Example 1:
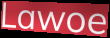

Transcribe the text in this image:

Lawoe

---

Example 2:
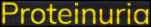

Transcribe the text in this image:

Proteinuria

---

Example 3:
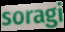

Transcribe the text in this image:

soragi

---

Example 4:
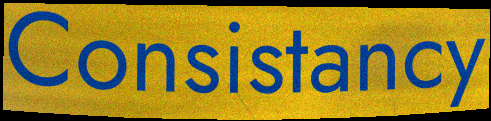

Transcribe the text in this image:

Consistancy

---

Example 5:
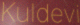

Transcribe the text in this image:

Kuldevi